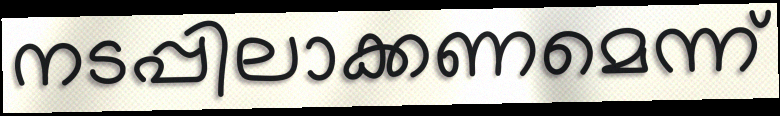
നടപ്പിലാക്കണമെന്ന്